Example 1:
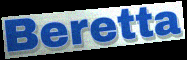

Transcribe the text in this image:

Beretta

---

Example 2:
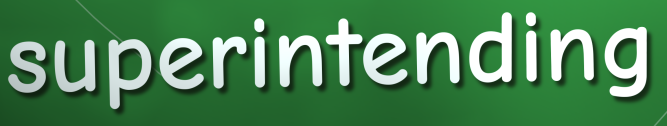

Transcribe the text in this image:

superintending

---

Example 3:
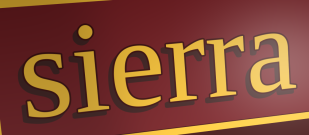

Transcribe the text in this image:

sierra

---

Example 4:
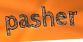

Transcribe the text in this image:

pasher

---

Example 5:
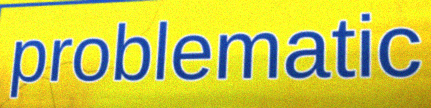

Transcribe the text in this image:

problematic